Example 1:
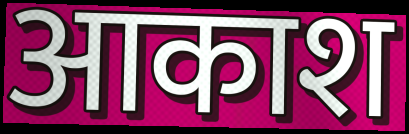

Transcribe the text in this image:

आकाश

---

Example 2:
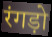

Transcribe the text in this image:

रंगड़ो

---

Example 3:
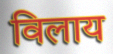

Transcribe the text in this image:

विलाय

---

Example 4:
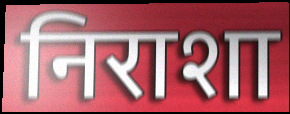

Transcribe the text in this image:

निराशा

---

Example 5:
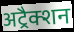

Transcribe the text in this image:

अट्रैक्शन